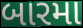
બારમા